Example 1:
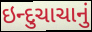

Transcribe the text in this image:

ઇન્દુચાચાનું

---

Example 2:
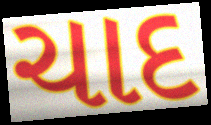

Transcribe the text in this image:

ચાદ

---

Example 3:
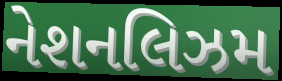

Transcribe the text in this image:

નેશનલિઝમ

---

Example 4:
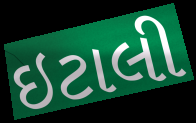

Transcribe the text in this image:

ઇટાલી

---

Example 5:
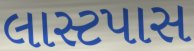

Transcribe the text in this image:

લાસ્ટપાસ